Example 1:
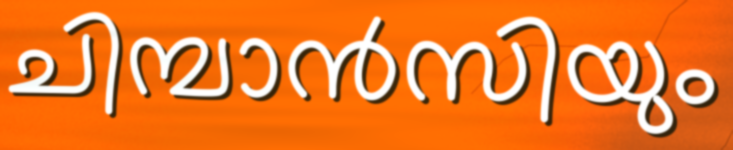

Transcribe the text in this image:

ചിമ്പാൻസിയും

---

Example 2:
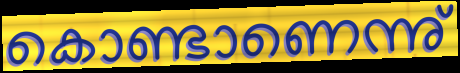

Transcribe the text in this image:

കൊണ്ടാണെന്നു്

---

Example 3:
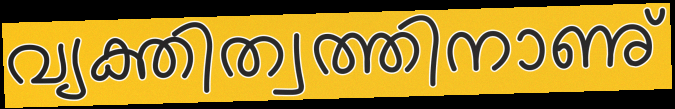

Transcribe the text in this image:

വ്യക്തിത്വത്തിനാണു്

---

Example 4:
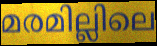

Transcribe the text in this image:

മരമില്ലിലെ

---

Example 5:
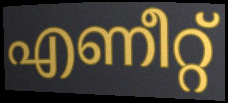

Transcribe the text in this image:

എണീറ്റ്